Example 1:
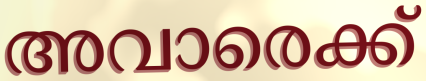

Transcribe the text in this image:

അവാരെക്ക്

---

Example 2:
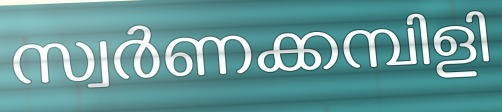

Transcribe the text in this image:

സ്വർണക്കമ്പിളി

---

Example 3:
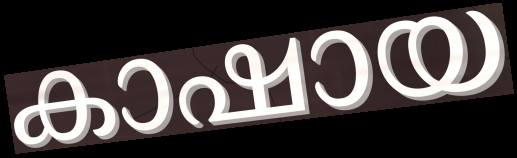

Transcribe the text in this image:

കാഷായ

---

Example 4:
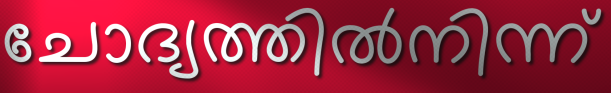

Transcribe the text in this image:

ചോദ്യത്തിൽനിന്ന്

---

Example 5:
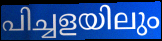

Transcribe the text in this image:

പിച്ചളയിലും